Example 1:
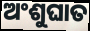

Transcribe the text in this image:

ଅଂଶୁଘାତ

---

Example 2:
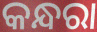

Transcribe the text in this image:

କନ୍ଧରା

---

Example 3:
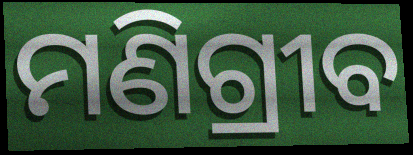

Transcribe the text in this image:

ମଣିଗ୍ରୀବ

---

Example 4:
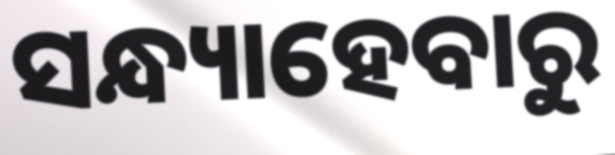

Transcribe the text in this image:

ସନ୍ଧ୍ୟାହେବାରୁ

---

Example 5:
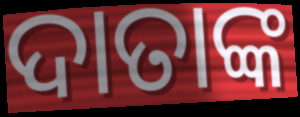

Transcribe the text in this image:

ଦାତାଙ୍କ